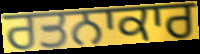
ਰਤਨਾਕਾਰ